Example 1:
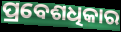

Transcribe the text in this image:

ପ୍ରବେଶଧିକାର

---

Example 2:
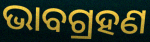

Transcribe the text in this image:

ଭାବଗ୍ରହଣ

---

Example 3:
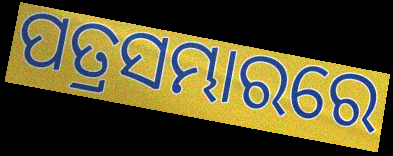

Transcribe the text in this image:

ପତ୍ରସମ୍ଭାରରେ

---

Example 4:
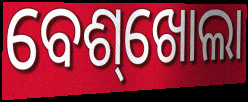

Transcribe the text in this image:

ବେଶ୍‌ଖୋଲା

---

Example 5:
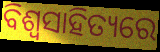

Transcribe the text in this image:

ବିଶ୍ବସାହିତ୍ୟରେ